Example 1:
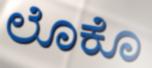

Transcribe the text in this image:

ಲೊಕೊ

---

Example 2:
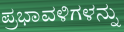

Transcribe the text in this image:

ಪ್ರಭಾವಳಿಗಳನ್ನು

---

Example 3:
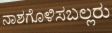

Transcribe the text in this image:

ನಾಶಗೊಳಿಸಬಲ್ಲರು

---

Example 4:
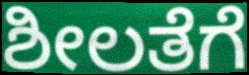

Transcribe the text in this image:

ಶೀಲತೆಗೆ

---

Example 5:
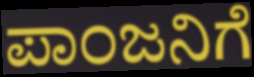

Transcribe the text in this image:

ಪಾಂಜನಿಗೆ